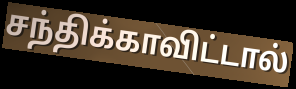
சந்திக்காவிட்டால்